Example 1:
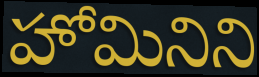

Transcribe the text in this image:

హోమినిని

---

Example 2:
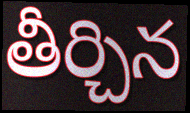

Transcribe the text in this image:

తీర్చిన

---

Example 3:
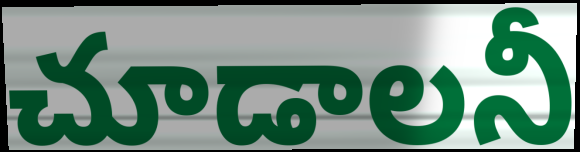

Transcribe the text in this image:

చూడాలనీ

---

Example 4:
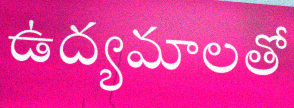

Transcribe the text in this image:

ఉద్యమాలతో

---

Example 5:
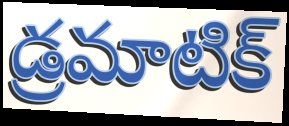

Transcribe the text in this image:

డ్రమాటిక్